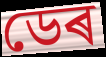
ডেৰ